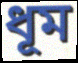
ধূম